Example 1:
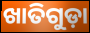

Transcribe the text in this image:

ଖାତିଗୁଡ଼ା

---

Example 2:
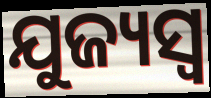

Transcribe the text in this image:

ଯୁଜ୍ୟସ୍ୱ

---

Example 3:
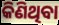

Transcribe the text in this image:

କିଣିଥିବା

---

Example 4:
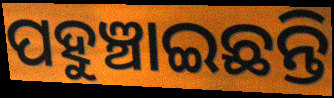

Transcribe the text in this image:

ପହୁଞ୍ଚାଇଛନ୍ତି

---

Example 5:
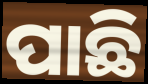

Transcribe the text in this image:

ପାଛି